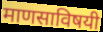
माणसाविषयी